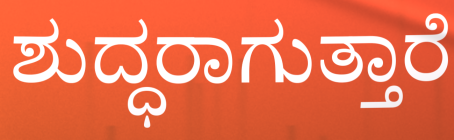
ಶುದ್ಧರಾಗುತ್ತಾರೆ